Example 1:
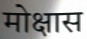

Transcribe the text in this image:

मोक्षास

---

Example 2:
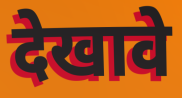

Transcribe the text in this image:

देखावे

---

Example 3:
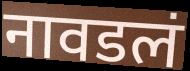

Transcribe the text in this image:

नावडलं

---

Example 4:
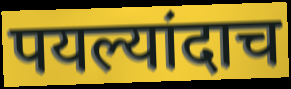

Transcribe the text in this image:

पयल्यांदाच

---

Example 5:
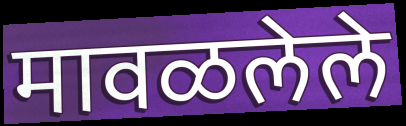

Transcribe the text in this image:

मावळलेले